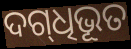
ଦଗ୍‌ଧିଭୂତ